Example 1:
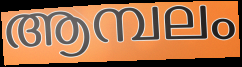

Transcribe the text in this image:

ആമ്പലം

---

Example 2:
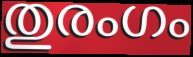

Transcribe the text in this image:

തുരംഗം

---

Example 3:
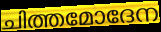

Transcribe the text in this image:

ചിത്തമോദേന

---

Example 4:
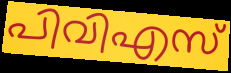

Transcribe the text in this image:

പിവിഎസ്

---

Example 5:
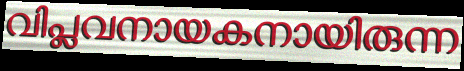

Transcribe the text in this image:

വിപ്ലവനായകനായിരുന്ന